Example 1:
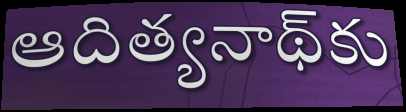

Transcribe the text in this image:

ఆదిత్యనాథ్‌కు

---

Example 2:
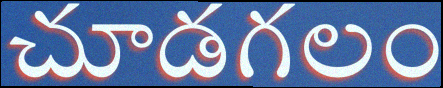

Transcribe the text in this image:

చూడగలం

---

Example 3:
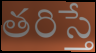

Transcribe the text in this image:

తరిస్తే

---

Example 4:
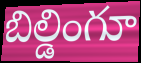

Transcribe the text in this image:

బిల్డింగూ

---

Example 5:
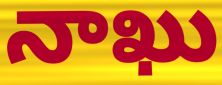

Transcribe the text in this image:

నాఖు